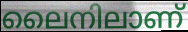
ലൈനിലാണ്